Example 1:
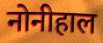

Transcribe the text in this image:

नोनीहाल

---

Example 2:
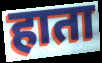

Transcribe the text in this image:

हाता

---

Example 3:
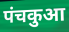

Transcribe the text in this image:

पंचकुआ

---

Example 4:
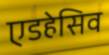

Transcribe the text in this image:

एडहेसिव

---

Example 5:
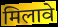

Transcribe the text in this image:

मिलावे